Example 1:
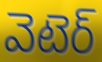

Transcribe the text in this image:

వెటెర్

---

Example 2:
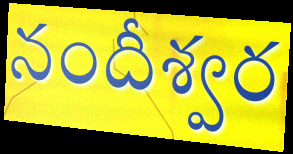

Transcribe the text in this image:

నందీశ్వర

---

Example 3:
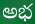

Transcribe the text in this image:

అభ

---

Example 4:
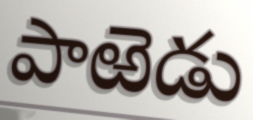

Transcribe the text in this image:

పాఱెడు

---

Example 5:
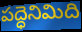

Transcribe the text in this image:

పద్ధెనిమిది